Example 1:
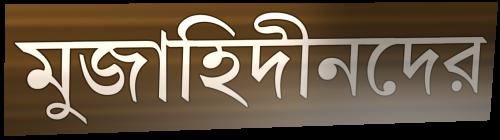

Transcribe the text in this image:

মুজাহিদীনদের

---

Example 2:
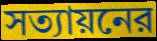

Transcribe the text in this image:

সত্যায়নের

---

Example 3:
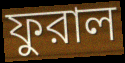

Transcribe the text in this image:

ফুরাল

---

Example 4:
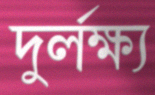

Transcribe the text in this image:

দুর্লক্ষ্য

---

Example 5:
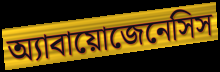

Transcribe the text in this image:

অ্যাবায়োজেনেসিস